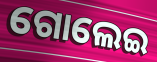
ଗୋଲେଇ